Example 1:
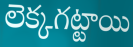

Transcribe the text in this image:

లెక్కగట్టాయి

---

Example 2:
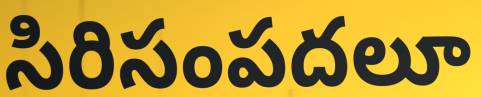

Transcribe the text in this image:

సిరిసంపదలూ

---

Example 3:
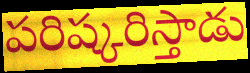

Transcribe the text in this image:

పరిష్కరిస్తాడు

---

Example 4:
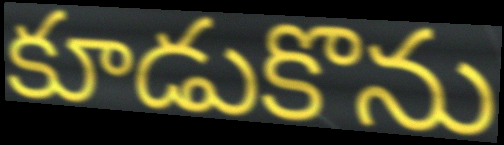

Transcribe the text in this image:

కూడుకొను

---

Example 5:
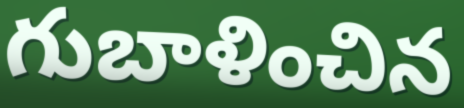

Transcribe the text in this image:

గుబాళించిన